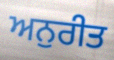
ਅਨੁਰੀਤ